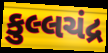
કુલ્લચંદ્ર